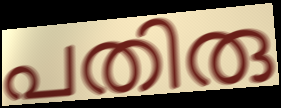
പതിരു